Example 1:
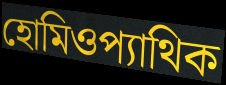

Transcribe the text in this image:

হোমিওপ্যাথিক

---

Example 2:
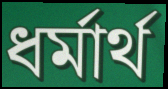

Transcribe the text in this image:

ধর্মার্থ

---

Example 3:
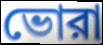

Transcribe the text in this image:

ভোরা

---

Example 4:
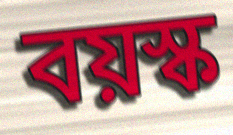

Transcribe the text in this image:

বয়স্ক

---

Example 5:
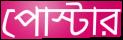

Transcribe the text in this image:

পোস্টার